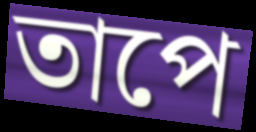
তাপে